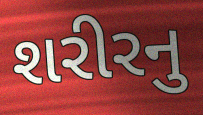
શરીરનુ